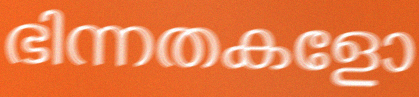
ഭിന്നതകളോ